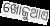
ଖୋଜୁଥାଏ